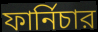
ফার্নিচার